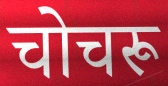
चोचरू